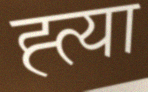
ह्त्या